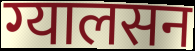
ग्यालसन